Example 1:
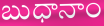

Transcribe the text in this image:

బుధానాం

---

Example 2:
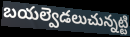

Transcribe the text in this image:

బయల్వెడలుచున్నట్టి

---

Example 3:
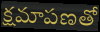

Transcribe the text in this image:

క్షమాపణతో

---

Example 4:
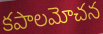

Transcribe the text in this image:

కపాలమోచన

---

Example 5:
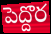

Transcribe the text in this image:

పెద్దొర